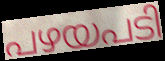
പഴയപടി